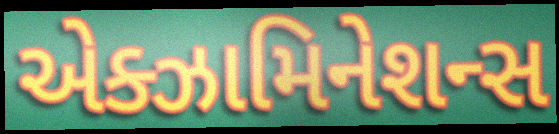
એક્ઝામિનેશન્સ